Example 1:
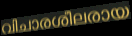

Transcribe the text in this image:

വിചാരശീലരായ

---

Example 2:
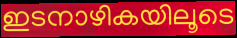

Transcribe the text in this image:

ഇടനാഴികയിലൂടെ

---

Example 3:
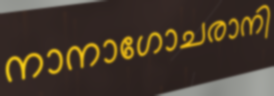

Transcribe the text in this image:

നാനാഗോചരാനി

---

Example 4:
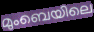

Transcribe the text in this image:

മുംബെയിലെ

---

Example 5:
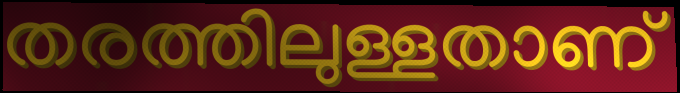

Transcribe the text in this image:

തരത്തിലുള്ളതാണ്